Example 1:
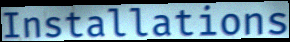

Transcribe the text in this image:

Installations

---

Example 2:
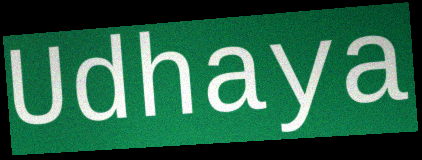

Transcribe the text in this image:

Udhaya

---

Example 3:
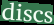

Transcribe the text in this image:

discs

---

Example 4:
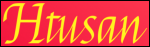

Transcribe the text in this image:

Htusan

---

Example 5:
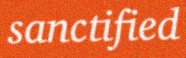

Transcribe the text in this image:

sanctified